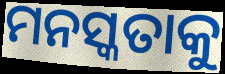
ମନସ୍କତାକୁ